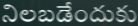
నిలబడేందుకు